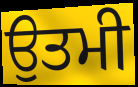
ਉਤਮੀ